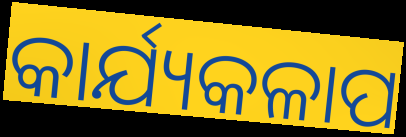
କାର୍ଯ୍ୟକଳାପ